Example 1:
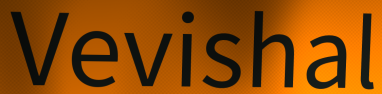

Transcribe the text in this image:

Vevishal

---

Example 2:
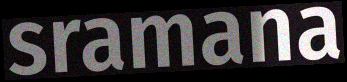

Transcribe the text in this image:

sramana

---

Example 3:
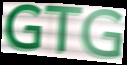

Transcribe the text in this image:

GTG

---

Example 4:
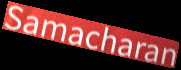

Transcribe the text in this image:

Samacharan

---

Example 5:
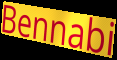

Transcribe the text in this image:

Bennabi